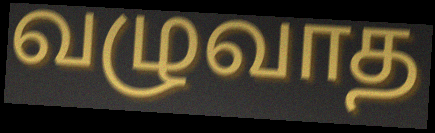
வழுவாத